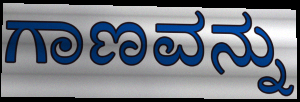
ಗಾಣವನ್ನು